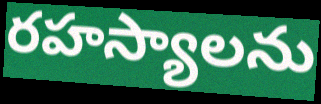
రహస్యాలను